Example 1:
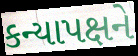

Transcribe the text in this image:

કન્યાપક્ષને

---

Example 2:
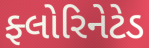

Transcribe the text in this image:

ફ્લોરિનેટેડ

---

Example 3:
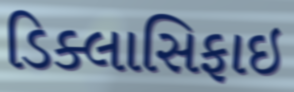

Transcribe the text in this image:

ડિક્લાસિફાઇ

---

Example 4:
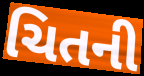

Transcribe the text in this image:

ચિતની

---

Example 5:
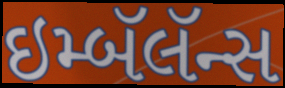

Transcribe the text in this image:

ઇમ્બૅલૅન્સ